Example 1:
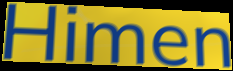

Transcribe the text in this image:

Himen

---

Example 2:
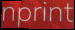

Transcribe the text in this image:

nprint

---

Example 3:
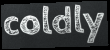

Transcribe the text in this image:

coldly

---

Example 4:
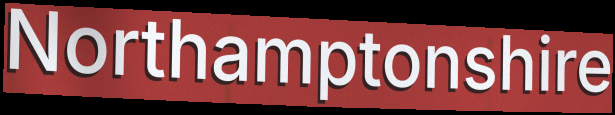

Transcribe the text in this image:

Northamptonshire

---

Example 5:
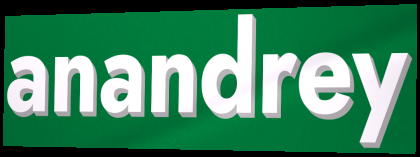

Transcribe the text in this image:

anandrey